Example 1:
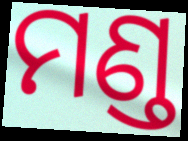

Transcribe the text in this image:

ମଣ୍ଡ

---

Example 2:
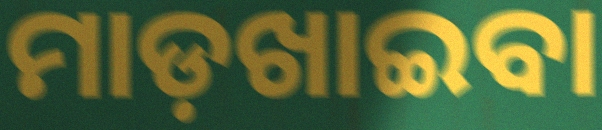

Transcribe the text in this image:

ମାଡ଼ଖାଇବା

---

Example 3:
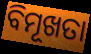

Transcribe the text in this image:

ବିମୂଖତା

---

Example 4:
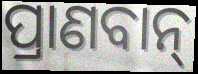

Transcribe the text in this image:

ପ୍ରାଣବାନ୍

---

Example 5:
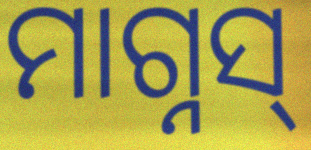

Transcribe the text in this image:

ମାଗ୍ନସ୍